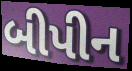
બીપીન